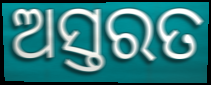
ଅସ୍ତରତ